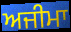
ਅਜੀਮਾ